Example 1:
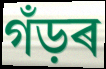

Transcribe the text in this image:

গঁড়ৰ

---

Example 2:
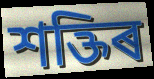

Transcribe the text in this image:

শক্তিৰ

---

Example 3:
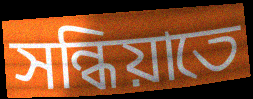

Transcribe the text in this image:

সন্ধিয়াতে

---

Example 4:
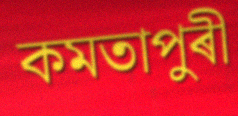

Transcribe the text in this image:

কমতাপুৰী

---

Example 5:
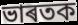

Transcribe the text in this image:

ভাৰতক